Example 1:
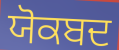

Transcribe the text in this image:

ਯੋਕਬਦ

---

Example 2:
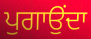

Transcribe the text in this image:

ਪੁਗਾਉਂਦਾ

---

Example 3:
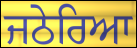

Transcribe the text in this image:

ਜਠੇਰਿਆ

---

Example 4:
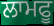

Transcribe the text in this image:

ਲਾਮਫੂ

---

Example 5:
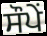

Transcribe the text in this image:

ਸੌਪੇਂ